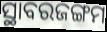
ସ୍ଥାବରଜଙ୍ଗମ